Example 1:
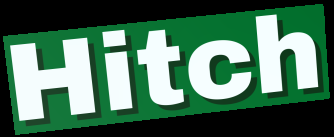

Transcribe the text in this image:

Hitch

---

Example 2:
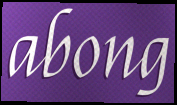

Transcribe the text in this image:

abong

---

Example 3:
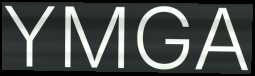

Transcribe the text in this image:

YMGA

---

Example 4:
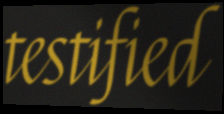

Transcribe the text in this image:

testified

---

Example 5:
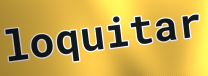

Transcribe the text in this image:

loquitar